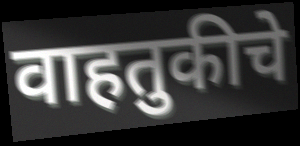
वाहतुकीचे